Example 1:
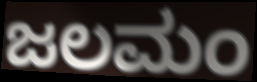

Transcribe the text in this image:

ಜಲಮಂ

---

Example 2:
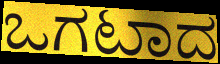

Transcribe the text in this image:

ಒಗಟಾದ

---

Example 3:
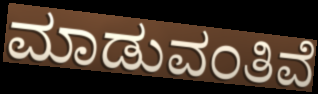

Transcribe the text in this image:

ಮಾಡುವಂತಿವೆ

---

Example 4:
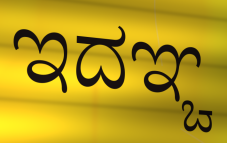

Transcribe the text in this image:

ಇದಞ್ಚ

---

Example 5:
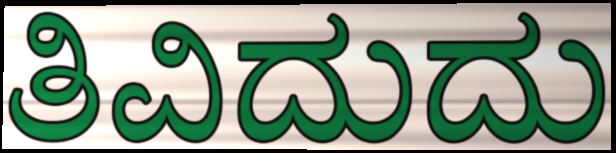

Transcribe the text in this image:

ತಿವಿದುದು